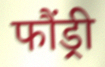
फौंड्री